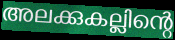
അലക്കുകല്ലിന്റെ